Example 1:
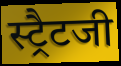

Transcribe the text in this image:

स्‍ट्रैटजी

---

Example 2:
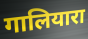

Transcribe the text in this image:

गालियारा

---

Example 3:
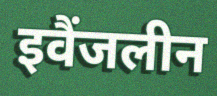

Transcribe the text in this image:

इवैंजलीन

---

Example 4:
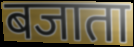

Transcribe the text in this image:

बजाता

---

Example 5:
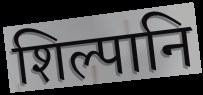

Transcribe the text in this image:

शिल्पानि